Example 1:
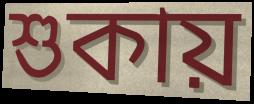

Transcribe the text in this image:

শুকায়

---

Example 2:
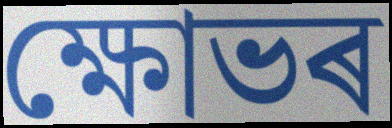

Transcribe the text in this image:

ক্ষোভৰ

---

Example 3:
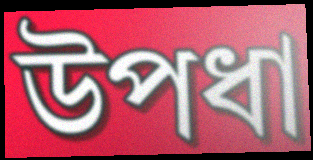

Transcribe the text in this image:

উপধা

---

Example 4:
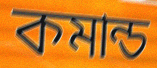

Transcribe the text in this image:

কমান্ড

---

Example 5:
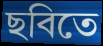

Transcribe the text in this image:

ছবিতে